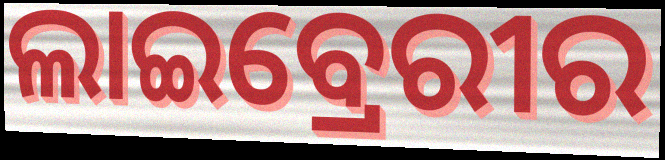
ଲାଇବ୍ରେରୀର